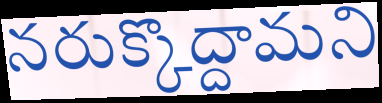
నరుక్కొద్దామని